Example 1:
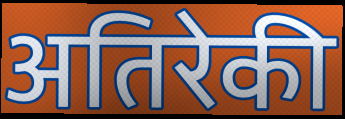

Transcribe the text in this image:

अतिरेकी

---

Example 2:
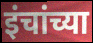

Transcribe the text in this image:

इंचांच्या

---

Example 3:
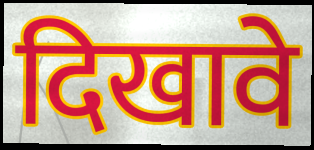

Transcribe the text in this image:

दिखावे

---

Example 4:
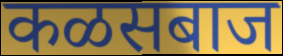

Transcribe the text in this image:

कळसबाज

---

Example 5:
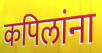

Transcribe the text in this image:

कपिलांना